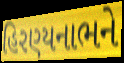
હિરણ્યનાભને